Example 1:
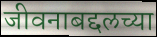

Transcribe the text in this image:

जीवनाबद्दलच्या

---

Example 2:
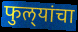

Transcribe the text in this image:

फुल्यांचा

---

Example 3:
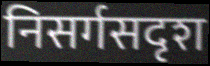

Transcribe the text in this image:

निसर्गसदृश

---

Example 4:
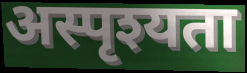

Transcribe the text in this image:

अस्पृश्यता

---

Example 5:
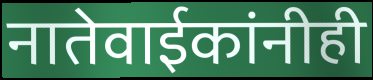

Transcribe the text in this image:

नातेवाईकांनीही